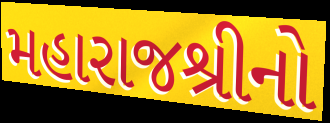
મહારાજશ્રીનો